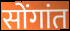
सोंगांत